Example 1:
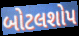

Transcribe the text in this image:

બોટલશોપ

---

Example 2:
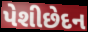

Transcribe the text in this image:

પેશીછેદન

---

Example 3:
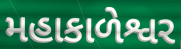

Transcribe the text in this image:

મહાકાળેશ્વર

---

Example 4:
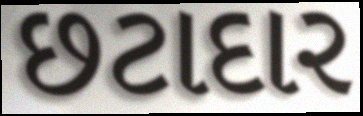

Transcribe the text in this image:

છટાદાર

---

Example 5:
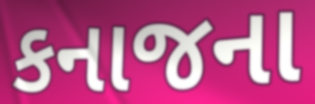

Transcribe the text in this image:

કનાજના